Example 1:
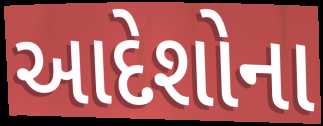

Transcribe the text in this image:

આદેશોના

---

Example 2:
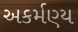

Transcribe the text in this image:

અકર્મણ્ય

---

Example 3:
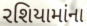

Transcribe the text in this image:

રશિયામાંના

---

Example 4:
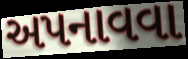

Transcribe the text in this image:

અપનાવવા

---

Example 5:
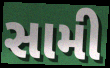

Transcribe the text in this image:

સામી